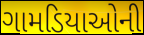
ગામડિયાઓની